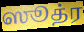
ஸூத்ர